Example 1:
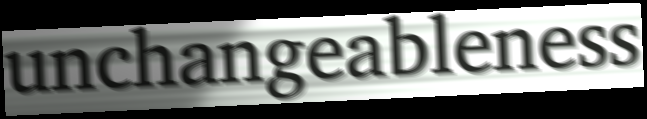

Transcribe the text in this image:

unchangeableness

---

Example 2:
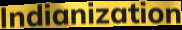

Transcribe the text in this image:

Indianization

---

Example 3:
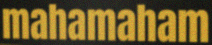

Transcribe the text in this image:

mahamaham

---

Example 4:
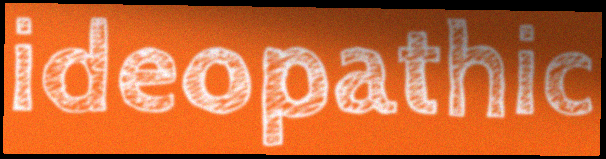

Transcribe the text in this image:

ideopathic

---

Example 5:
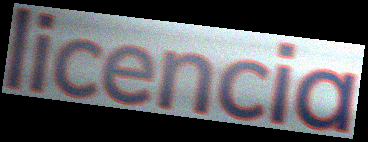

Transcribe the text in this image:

licencia